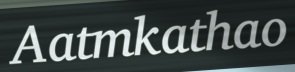
Aatmkathao